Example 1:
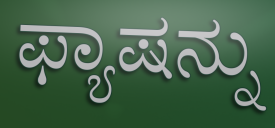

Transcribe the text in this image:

ಫ್ಯಾಷನ್ನು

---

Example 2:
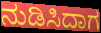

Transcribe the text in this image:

ನುಡಿಸಿದಾಗ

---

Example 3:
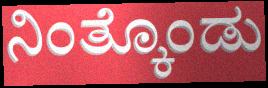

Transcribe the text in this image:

ನಿಂತ್ಕೊಂಡು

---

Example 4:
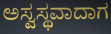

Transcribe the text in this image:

ಅಸ್ವಸ್ಥವಾದಾಗ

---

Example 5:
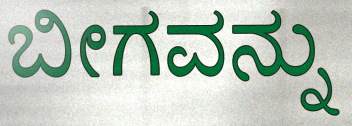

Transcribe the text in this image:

ಬೀಗವನ್ನು